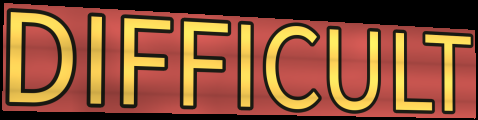
DIFFICULT